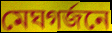
মেঘগর্জনে